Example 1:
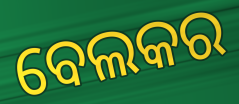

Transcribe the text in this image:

ବେଲକର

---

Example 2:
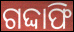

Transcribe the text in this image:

ଗଦ୍ଦାଫି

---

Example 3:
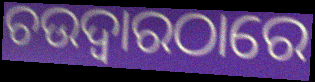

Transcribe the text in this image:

ଚଉଦ୍ଵାରଠାରେ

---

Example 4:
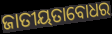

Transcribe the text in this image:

ଜାତୀୟତାବୋଧର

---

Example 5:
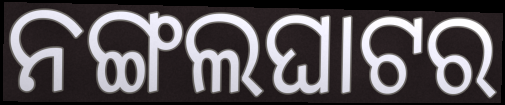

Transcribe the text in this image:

ନଙ୍ଗଲଘାଟର